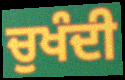
ਚੁਖੰਦੀ